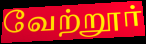
வேற்றூர்